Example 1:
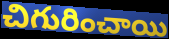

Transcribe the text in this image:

చిగురించాయి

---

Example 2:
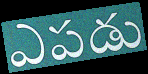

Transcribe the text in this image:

ఎపడు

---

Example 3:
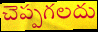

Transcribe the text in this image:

చెప్పగలదు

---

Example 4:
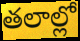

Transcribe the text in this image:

తలాల్లో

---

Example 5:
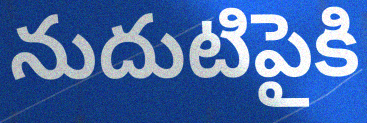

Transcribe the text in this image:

నుదుటిపైకి